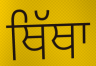
ਥਿੱਥਾ